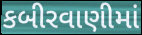
કબીરવાણીમાં